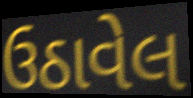
ઉઠાવેલ